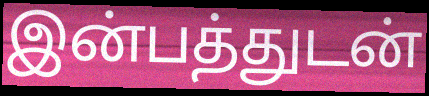
இன்பத்துடன்